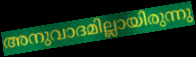
അനുവാദമില്ലായിരുന്നു